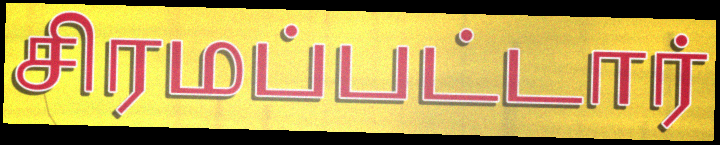
சிரமப்பட்டார்